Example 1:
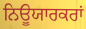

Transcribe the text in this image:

ਨਿਊਯਾਰਕਰਾਂ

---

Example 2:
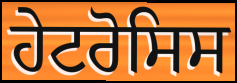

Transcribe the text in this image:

ਹੇਟਰੋਸਿਸ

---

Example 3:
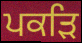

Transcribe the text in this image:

ਪਕੜਿ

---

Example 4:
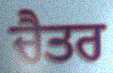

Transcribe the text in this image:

ਚੈਤਰ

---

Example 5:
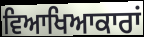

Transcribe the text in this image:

ਵਿਆਖਿਆਕਾਰਾਂ